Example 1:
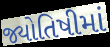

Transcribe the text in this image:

જ્યોતિષીમાં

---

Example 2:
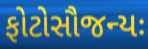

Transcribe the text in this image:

ફોટોસૌજન્યઃ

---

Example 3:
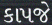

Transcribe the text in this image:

કાપજે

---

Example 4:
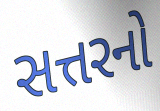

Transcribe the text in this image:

સત્તરનો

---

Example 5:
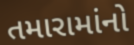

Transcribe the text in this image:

તમારામાંનો